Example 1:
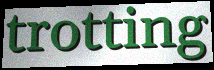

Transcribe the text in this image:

trotting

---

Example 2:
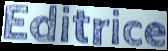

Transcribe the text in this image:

Editrice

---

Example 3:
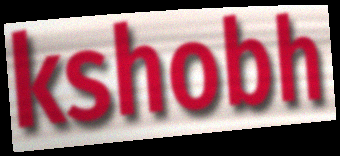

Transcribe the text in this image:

kshobh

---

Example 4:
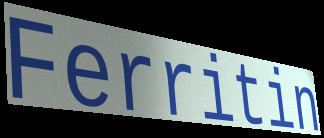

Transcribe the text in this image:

Ferritin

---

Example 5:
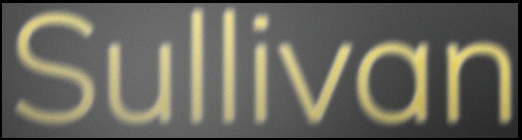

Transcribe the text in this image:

Sullivan